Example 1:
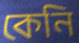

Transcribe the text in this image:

কেনি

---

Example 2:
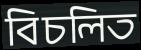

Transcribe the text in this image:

বিচলিত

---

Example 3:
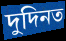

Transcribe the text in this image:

দুদিনত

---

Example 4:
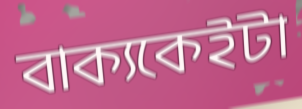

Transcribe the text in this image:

বাক্যকেইটা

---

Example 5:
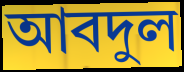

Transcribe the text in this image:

আবদুল